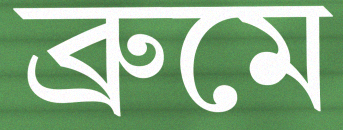
ব্রুমে